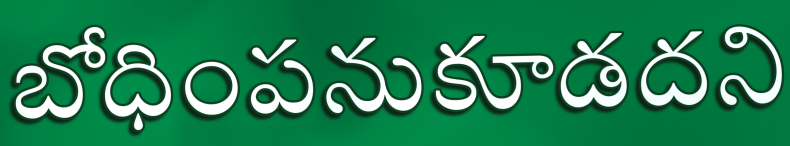
బోధింపనుకూడదని